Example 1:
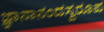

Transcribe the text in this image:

ಜ್ಞಾನಾನಂದಸ್ವರೂಪ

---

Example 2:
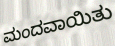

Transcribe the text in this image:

ಮಂದವಾಯಿತು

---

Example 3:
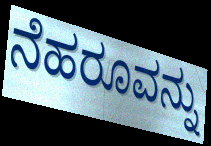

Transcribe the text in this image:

ನೆಹರೂವನ್ನು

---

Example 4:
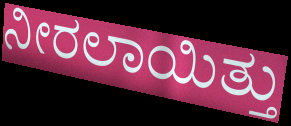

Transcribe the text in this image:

ನೀರಲಾಯಿತ್ತು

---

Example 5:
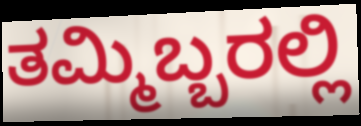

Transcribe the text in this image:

ತಮ್ಮಿಬ್ಬರಲ್ಲಿ